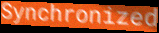
Synchronized